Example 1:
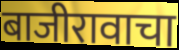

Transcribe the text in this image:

बाजीरावाचा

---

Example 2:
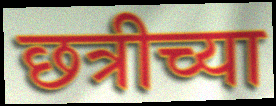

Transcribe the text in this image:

छत्रीच्या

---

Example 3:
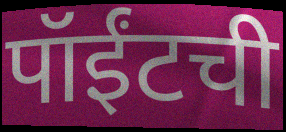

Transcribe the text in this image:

पॉईंटची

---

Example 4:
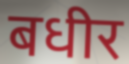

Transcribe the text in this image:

बधीर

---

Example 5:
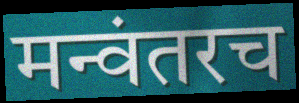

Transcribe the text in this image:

मन्वंतरच